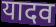
यादव